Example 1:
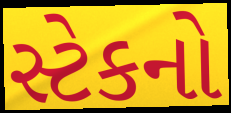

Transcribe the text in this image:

સ્ટેકનો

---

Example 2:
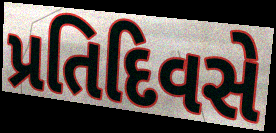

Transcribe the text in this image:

પ્રતિદિવસે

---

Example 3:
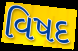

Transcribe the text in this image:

વિષદ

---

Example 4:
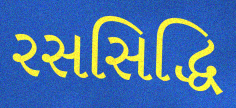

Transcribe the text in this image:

રસસિદ્ધિ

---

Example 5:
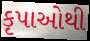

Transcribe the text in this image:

કૃપાઓથી